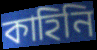
কাহিনি